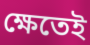
ক্ষেতেই